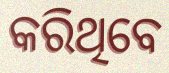
କରିଥିବେ